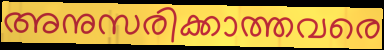
അനുസരിക്കാത്തവരെ